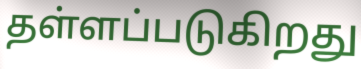
தள்ளப்படுகிறது